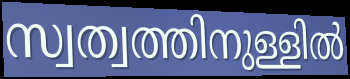
സ്വത്വത്തിനുള്ളിൽ